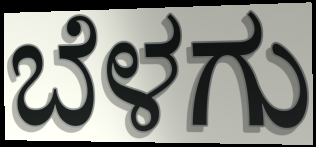
ಬೆಳಗು